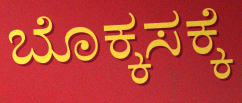
ಬೊಕ್ಕಸಕ್ಕೆ